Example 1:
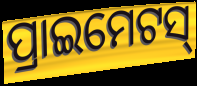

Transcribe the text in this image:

ପ୍ରାଇମେଟସ୍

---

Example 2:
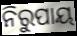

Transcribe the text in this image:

ନିରୁପାୟ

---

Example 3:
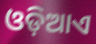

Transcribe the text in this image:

ଓଡ଼ିଆଏ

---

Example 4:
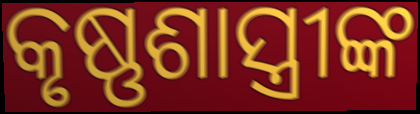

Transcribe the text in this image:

କୃଷ୍ଣଶାସ୍ତ୍ରୀଙ୍କ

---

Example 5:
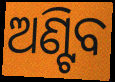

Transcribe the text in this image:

ଅଣ୍ଟିବ